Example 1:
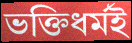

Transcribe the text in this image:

ভক্তিধৰ্মই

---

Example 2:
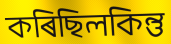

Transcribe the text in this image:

কৰিছিলকিন্তু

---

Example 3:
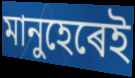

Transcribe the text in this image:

মানুহেৰেই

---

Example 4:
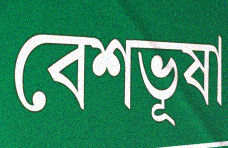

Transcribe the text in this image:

বেশভূষা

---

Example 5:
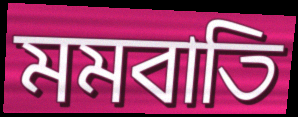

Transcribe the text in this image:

মমবাতি